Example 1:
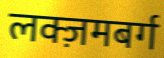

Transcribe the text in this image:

लक्ज़मबर्ग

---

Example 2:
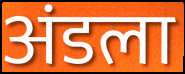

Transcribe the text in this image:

अंडला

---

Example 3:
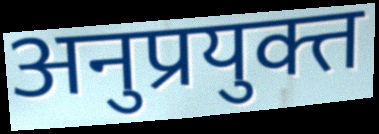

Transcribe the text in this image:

अनुप्रयुक्त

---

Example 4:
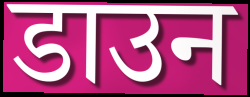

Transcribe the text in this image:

डाउन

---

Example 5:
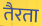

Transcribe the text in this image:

तैरता